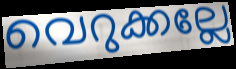
വെറുക്കല്ലേ